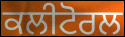
ਕਲੀਟੋਰਲ